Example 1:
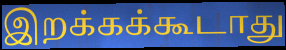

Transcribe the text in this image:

இறக்கக்கூடாது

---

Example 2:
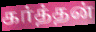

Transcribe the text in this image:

கர்த்தன்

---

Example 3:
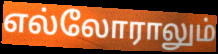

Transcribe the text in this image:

எல்லோராலும்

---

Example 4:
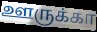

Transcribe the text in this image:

ஊருக்கா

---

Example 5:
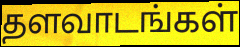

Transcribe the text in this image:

தளவாடங்கள்